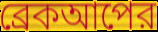
ব্রেকআপের